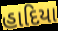
હાદિયા